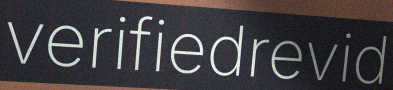
verifiedrevid